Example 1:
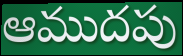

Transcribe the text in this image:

ఆముదపు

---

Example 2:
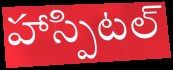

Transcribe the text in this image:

హాస్పిటల్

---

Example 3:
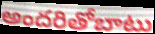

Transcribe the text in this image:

అందరితోబాటు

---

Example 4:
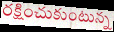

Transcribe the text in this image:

రక్షించుకుంటున్న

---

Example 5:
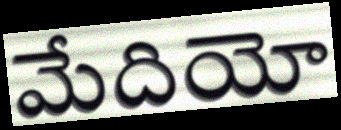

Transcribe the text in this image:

మేదియో